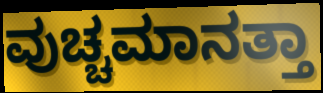
ವುಚ್ಚಮಾನತ್ತಾ